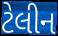
ટેલીન